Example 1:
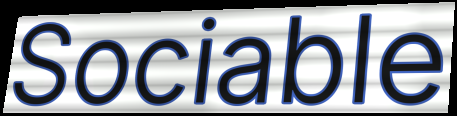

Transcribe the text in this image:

Sociable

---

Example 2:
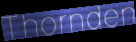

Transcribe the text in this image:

Thornden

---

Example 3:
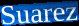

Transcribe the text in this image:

Suarez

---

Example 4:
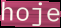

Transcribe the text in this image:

hoje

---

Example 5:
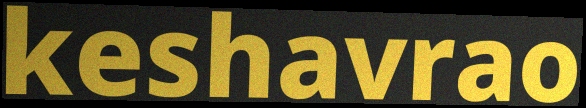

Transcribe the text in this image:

keshavrao